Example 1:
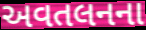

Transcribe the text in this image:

અવતલનના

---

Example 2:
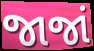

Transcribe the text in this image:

જાજાં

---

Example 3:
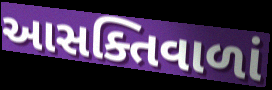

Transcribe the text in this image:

આસક્તિવાળાં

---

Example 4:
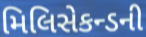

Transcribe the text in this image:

મિલિસેકન્ડની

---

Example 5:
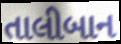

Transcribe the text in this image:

તાલીબાન